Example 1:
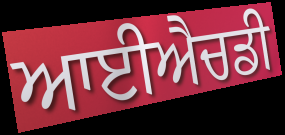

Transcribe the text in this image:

ਆਈਐਚਡੀ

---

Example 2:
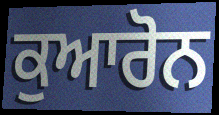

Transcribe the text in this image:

ਕੁਆਰੋਨ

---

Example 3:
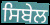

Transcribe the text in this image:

ਸਿਬੇਲ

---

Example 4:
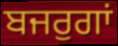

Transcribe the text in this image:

ਬਜਰੁਗਾਂ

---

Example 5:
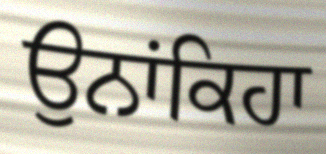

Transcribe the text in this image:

ਉਨਾਂਕਿਹਾ